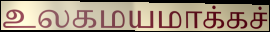
உலகமயமாக்கச்